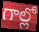
గాల్లో